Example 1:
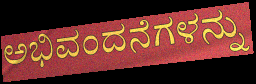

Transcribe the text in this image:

ಅಭಿವಂದನೆಗಳನ್ನು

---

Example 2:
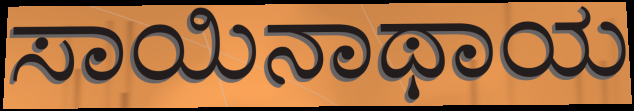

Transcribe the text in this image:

ಸಾಯಿನಾಥಾಯ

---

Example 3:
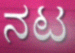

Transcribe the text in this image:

ನಟ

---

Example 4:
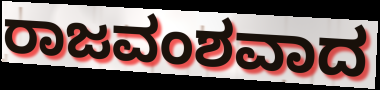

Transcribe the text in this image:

ರಾಜವಂಶವಾದ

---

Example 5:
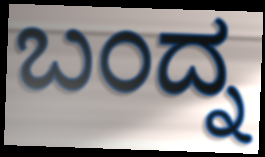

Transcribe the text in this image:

ಬಂದ್ನ